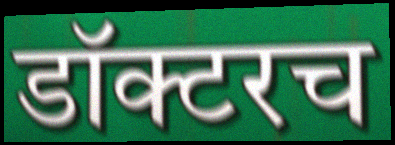
डॉक्टरच